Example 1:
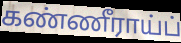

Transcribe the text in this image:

கண்ணீராய்ப்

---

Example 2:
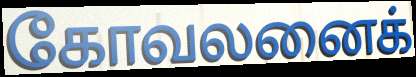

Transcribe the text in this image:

கோவலனைக்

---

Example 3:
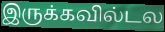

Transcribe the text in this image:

இருக்கவில்டல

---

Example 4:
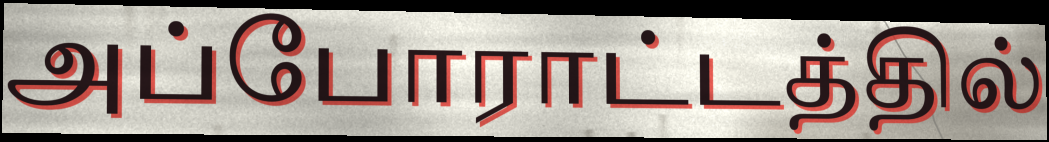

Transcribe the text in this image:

அப்போராட்டத்தில்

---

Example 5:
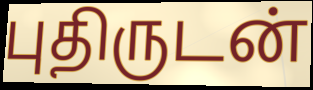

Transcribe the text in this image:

புதிருடன்